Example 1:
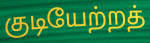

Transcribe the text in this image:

குடியேற்றத்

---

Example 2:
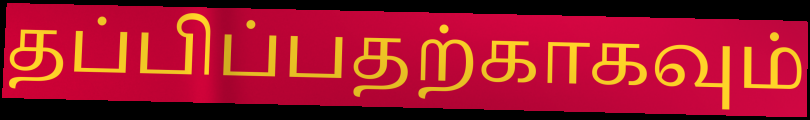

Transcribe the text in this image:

தப்பிப்பதற்காகவும்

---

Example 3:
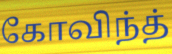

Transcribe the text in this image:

கோவிந்த்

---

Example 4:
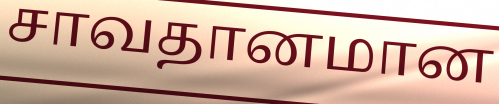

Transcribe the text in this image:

சாவதானமான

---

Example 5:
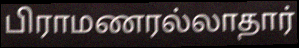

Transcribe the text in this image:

பிராமணரல்லாதார்